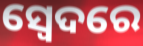
ସ୍ଵେଦରେ